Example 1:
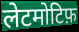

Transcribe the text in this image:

लेटमोटिफ़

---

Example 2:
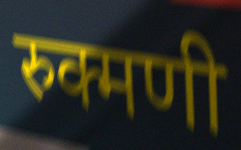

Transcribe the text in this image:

रुक्मणी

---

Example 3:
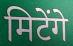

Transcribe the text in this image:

मिटेंगे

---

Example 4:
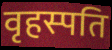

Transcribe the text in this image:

वृहस्पति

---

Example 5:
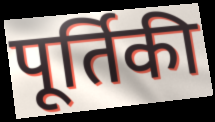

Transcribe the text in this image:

पूर्तिकी